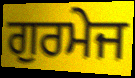
ਗੁਰਮੇਜ